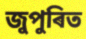
জুপুৰিত